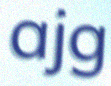
ajg